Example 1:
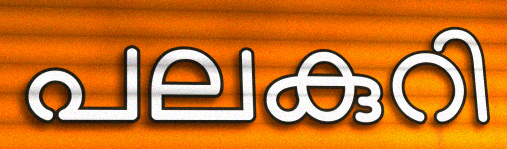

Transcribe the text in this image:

പലകുറി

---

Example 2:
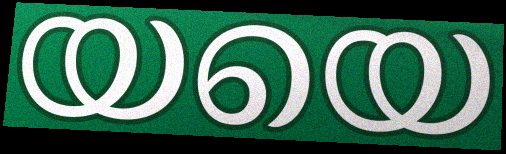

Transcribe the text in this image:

യയെ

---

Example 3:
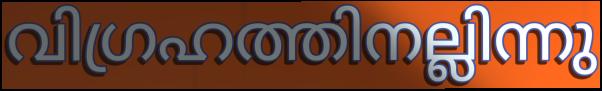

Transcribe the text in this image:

വിഗ്രഹത്തിനല്ലിന്നു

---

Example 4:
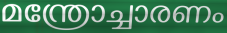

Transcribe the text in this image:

മന്ത്രോച്ചാരണം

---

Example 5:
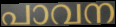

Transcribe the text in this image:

പാവന